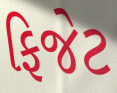
ફિજેટ